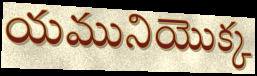
యమునియొక్క